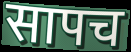
सापच